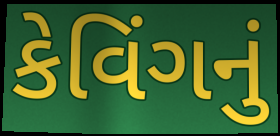
કેવિંગનું